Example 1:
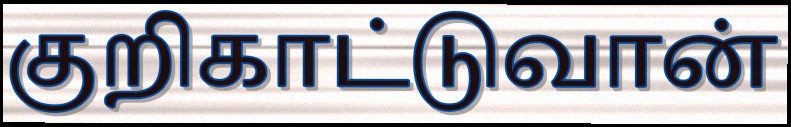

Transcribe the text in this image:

குறிகாட்டுவான்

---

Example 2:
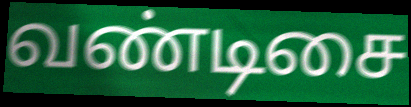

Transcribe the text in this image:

வண்டிசை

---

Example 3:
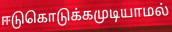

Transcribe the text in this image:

ஈடுகொடுக்கமுடியாமல்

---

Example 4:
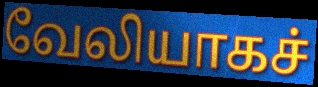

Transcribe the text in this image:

வேலியாகச்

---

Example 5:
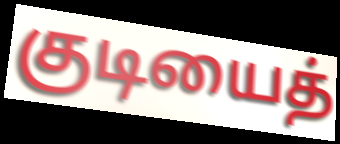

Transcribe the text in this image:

குடியைத்